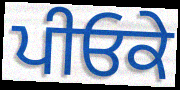
ਪੀਓਕੇ